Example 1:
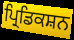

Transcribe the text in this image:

ਪ੍ਰਿਡਿਕਸ਼ਨ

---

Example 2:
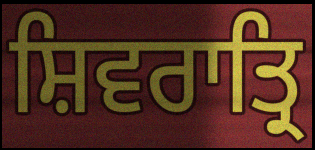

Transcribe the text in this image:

ਸ਼ਿਵਰਾਤ੍ਰਿ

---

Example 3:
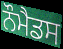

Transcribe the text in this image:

ਨੌਮੈਡਸ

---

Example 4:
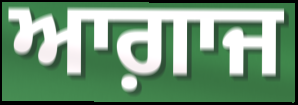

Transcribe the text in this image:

ਆਗ਼ਾਜ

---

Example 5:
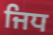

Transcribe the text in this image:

ਜਿਧ